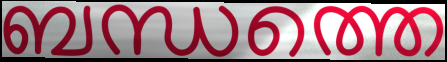
ബന്ധത്തെ